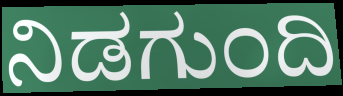
ನಿಡಗುಂದಿ